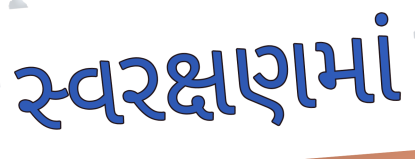
સ્વરક્ષણમાં